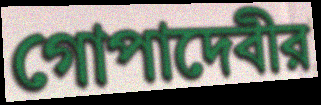
গোপাদেবীর